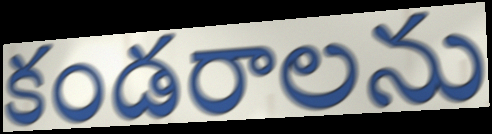
కండరాలను